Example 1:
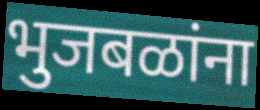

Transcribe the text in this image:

भुजबळांना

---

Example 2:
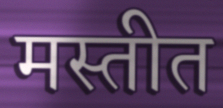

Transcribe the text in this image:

मस्तीत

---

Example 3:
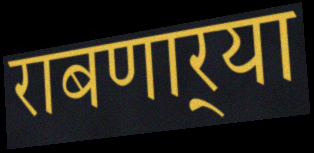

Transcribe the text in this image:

राबणार्या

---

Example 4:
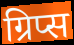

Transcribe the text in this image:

ग्रिप्स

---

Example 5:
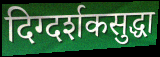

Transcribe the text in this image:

दिग्दर्शकसुद्धा